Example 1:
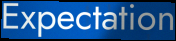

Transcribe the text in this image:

Expectation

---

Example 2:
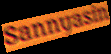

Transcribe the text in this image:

Sannyasin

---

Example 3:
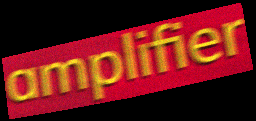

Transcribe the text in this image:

amplifier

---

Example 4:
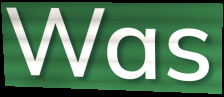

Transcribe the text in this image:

Was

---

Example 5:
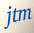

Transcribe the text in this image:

jtm